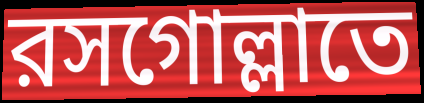
রসগোল্লাতে